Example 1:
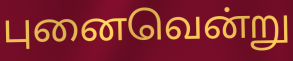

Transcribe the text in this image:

புனைவென்று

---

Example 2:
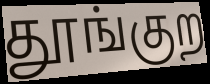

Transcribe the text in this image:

தூங்குற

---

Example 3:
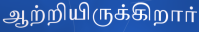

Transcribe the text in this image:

ஆற்றியிருக்கிறார்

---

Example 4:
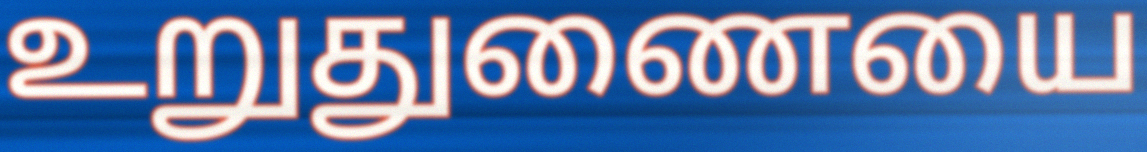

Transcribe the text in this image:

உறுதுணையை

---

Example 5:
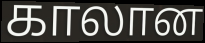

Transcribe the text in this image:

காலான